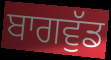
ਬਾਗਵੁੱਡ